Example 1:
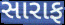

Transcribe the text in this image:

સારાફ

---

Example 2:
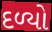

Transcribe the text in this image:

દળ્યો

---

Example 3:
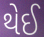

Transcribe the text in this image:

થેઈ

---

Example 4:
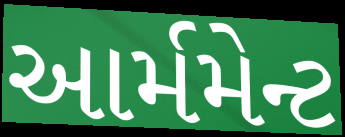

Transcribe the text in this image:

આર્મમેન્ટ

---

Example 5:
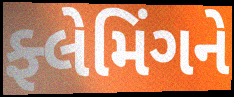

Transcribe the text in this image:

ફ્લેમિંગને